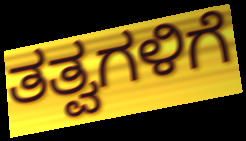
ತತ್ವಗಳಿಗೆ